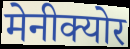
मेनीक्योर